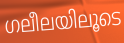
ഗലീലയിലൂടെ